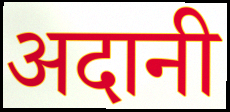
अदानी